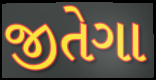
જીતેગા